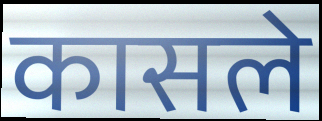
कासले